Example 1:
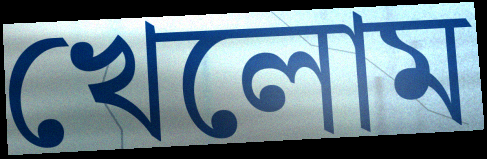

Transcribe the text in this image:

খেলোম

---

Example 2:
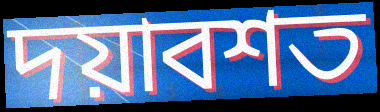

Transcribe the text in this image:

দয়াবশত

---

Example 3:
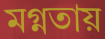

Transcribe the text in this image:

মগ্নতায়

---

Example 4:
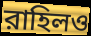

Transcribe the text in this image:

রাহিলও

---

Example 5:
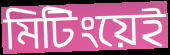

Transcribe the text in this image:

মিটিংয়েই